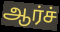
ஆர்ச்